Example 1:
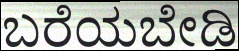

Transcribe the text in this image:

ಬರೆಯಬೇಡಿ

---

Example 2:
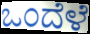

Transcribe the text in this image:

ಒಂದೆಳೆ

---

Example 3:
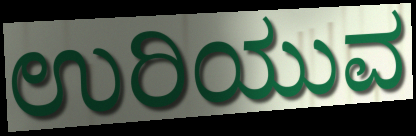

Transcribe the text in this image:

ಉರಿಯುವ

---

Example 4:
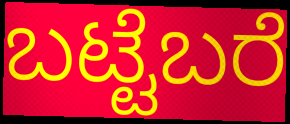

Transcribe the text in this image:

ಬಟ್ಟೆಬರೆ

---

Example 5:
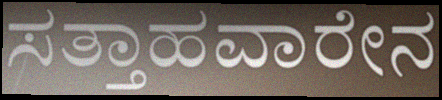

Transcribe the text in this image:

ಸತ್ತಾಹವಾರೇನ